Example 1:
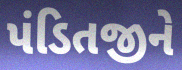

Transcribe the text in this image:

પંડિતજીને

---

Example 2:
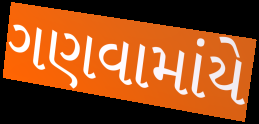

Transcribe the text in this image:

ગણવામાંયે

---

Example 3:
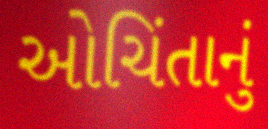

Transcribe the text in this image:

ઓચિંતાનું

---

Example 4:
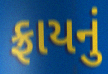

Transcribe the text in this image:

ફ્રાયનું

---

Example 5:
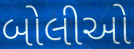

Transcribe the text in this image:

બોલીઓ